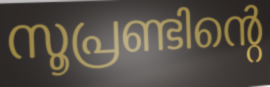
സൂപ്രണ്ടിന്റെ